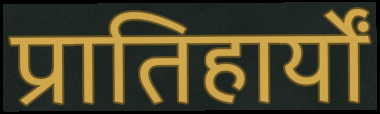
प्रातिहार्यों